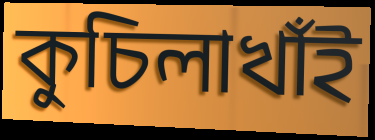
কুচিলাখাঁই